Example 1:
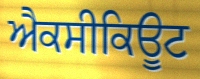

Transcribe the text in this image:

ਐਕਸੀਕਿਊਟ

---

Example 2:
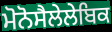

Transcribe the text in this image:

ਮੋਨੋਸੈਲੇਲੇਬਿਕ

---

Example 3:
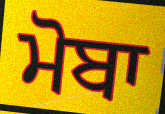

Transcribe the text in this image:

ਮੋਬਾ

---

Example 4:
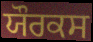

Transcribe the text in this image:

ਯੌਰਕਸ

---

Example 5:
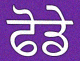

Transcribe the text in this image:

ਫੋਡੇ